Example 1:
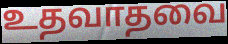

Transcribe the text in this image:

உதவாதவை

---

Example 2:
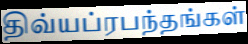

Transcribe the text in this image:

திவ்யப்ரபந்தங்கள்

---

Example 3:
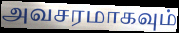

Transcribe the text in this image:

அவசரமாகவும்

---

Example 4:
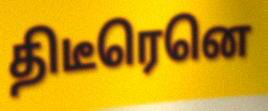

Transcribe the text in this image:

திடீரெனெ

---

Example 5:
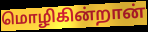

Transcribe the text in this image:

மொழிகின்றான்